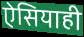
ऐसियाही